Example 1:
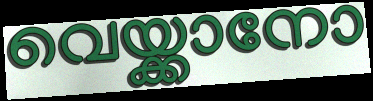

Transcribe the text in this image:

വെയ്ക്കാനോ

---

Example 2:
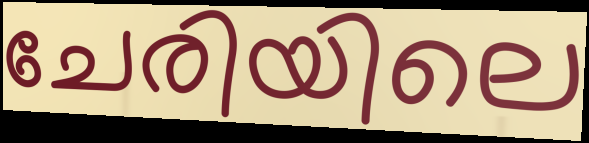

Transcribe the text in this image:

ചേരിയിലെ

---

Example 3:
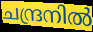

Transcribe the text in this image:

ചന്ദ്രനിൽ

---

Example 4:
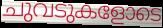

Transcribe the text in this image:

ചുവടുകളോടെ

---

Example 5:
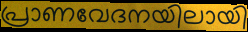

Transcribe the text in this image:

പ്രാണവേദനയിലായി